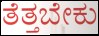
ತೆತ್ತಬೇಕು